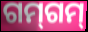
ଗମ୍‌ଗମ୍